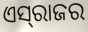
ଏସ୍‍ରାଜର